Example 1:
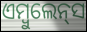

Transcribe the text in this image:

ଏମ୍ବୁଲେନ୍‌ସ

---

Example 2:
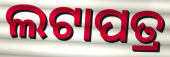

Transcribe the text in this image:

ଲଟାପତ୍ର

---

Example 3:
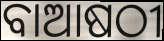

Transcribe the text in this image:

ବାଆଷଠୀ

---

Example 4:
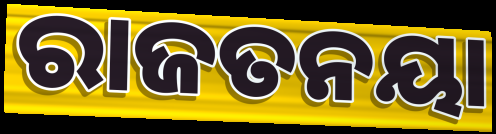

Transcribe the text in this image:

ରାଜତନୟା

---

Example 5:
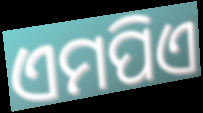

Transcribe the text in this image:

ଏମପିଏ